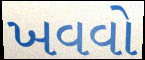
ખવવો